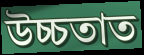
উচ্চতাত